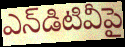
ఎన్‌డిటివీపై